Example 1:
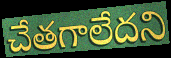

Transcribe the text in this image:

చేతగాలేదని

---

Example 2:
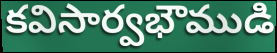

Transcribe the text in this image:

కవిసార్వభౌముడి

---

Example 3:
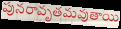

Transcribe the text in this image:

పునరావృతమవుతాయి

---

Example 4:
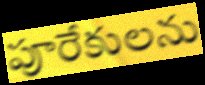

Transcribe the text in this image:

పూరేకులను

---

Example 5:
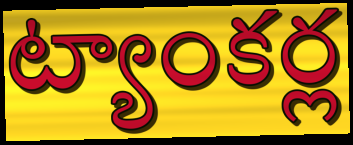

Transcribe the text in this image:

ట్యాంకర్ల